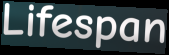
Lifespan